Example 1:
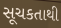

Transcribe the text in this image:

સૂચકતાથી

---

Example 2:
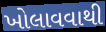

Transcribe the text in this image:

ખોલાવવાથી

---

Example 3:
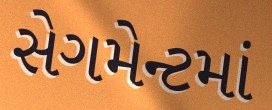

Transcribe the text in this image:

સેગમેન્ટમાં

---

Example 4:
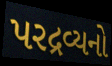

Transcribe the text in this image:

પરદ્રવ્યનો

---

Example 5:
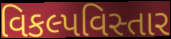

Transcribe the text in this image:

વિકલ્પવિસ્તાર